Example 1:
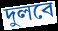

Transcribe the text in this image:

দুলবে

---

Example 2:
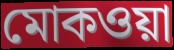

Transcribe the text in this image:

মোকওয়া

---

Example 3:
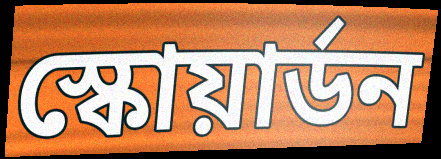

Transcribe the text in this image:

স্কোয়ার্ডন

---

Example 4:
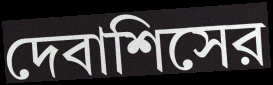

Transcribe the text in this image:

দেবাশিসের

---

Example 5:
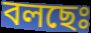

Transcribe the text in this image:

বলছেঃ